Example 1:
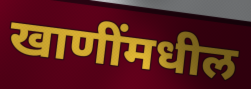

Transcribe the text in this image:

खाणींमधील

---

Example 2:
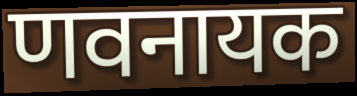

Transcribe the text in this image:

णवनायक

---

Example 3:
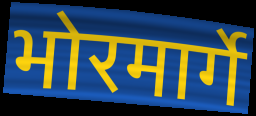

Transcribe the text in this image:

भोरमार्गे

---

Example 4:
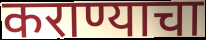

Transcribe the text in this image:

कराण्याचा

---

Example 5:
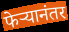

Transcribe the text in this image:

फेऱ्यानंतर